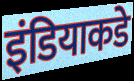
इंडियाकडे